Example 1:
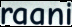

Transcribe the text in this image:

raani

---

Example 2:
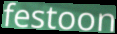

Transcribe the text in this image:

festoon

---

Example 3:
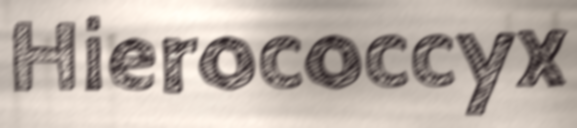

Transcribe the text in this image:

Hierococcyx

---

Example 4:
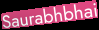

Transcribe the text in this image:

Saurabhbhai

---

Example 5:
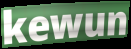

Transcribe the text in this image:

kewun